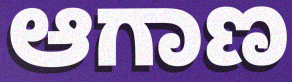
ಆಗಾಣ